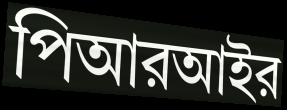
পিআরআইর